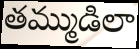
తమ్ముడిలా